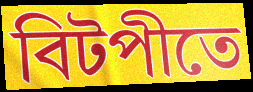
বিটপীতে